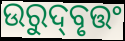
ଉରୁଦ୍‌ବୃତ୍ତଂ